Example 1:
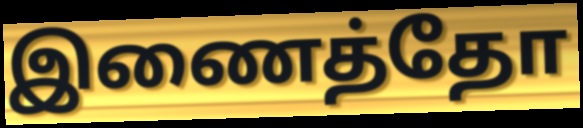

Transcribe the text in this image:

இணைத்தோ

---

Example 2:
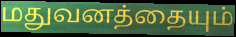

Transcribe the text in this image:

மதுவனத்தையும்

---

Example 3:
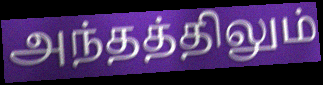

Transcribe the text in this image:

அந்தத்திலும்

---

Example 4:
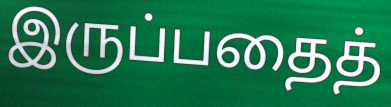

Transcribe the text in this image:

இருப்பதைத்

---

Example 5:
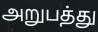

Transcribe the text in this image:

அறுபத்து